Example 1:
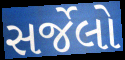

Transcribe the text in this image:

સર્જેલો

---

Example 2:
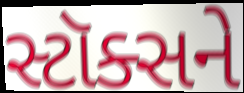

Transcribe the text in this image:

સ્ટૉક્સને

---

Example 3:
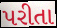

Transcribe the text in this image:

પરીતા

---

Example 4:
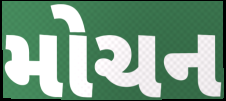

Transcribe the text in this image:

મોચન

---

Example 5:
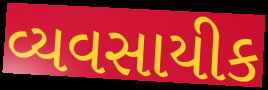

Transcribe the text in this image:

વ્યવસાયીક